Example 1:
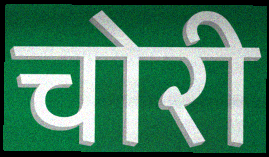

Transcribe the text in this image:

चोरी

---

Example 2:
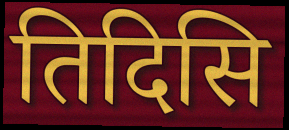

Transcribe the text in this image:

तिदिसि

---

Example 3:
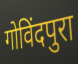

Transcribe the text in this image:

गोविंदपुरा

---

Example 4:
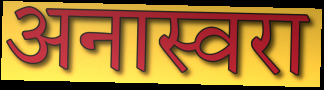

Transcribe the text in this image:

अनास्वरा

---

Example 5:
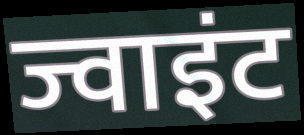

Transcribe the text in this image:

ज्वाइंट